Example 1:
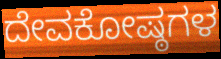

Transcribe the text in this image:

ದೇವಕೋಷ್ಠಗಳ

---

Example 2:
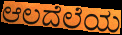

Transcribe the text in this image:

ಆಲದೆಲೆಯ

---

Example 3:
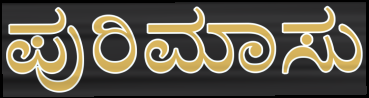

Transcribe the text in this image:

ಪುರಿಮಾಸು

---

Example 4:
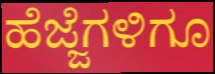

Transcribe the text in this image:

ಹೆಜ್ಜೆಗಳಿಗೂ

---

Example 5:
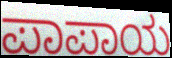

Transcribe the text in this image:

ಪಾಪಾಯ